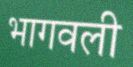
भागवली